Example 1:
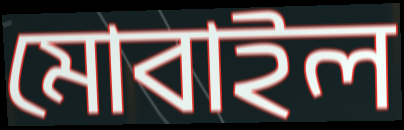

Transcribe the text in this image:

মোবাইল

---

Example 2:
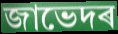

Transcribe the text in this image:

জাভেদৰ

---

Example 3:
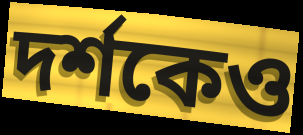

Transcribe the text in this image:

দৰ্শকেও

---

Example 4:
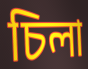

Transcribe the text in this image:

চিলা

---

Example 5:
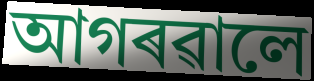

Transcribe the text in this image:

আগৰৱালে